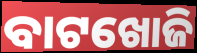
ବାଟଖୋଜି